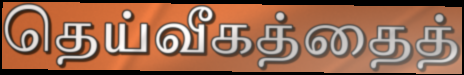
தெய்வீகத்தைத்